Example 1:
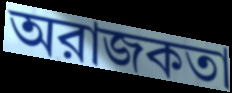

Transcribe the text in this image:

অরাজকতা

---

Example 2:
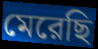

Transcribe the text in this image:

মেরেছি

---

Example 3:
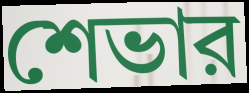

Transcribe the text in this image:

শেভার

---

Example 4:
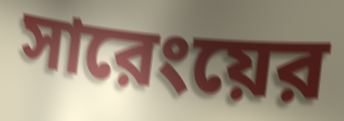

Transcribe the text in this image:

সারেংয়ের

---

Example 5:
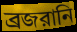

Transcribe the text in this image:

ব্রজরানি